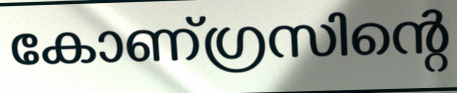
കോണ്ഗ്രസിന്റെ